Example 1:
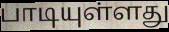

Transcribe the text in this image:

பாடியுள்ளது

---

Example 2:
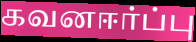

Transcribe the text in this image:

கவனஈர்ப்பு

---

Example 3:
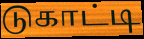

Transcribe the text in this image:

டுகாட்டி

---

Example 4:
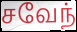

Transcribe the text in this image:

சவேந்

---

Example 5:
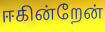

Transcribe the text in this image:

ஈகின்றேன்